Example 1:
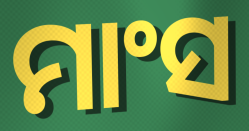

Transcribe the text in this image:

ମାଂସ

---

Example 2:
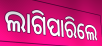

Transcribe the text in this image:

ଲାଗିପାରିଲେ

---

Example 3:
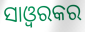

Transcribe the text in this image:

ସାଓ୍ୱରକର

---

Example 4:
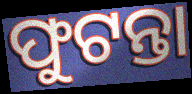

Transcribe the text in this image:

ଫୁଟନ୍ତା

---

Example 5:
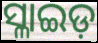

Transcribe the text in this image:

ସ୍ଳାଇଡ଼